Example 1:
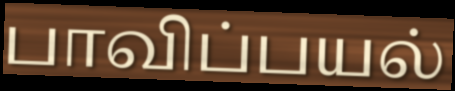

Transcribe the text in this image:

பாவிப்பயல்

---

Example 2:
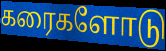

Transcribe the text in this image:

கரைகளோடு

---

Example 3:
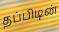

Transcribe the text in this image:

தப்பிடின்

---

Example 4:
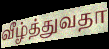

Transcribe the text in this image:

வீழ்த்துவதா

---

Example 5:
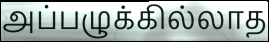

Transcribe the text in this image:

அப்பழுக்கில்லாத